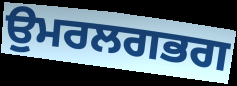
ਉੁਮਰਲਗਭਗ